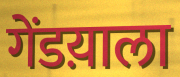
गेंडय़ाला